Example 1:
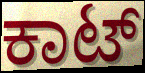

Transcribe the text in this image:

ಕಾಟ್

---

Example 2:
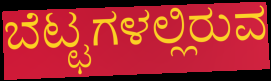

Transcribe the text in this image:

ಬೆಟ್ಟಗಳಲ್ಲಿರುವ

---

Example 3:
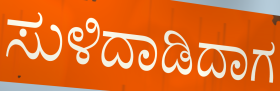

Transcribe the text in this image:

ಸುಳಿದಾಡಿದಾಗ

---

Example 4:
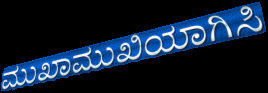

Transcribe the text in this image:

ಮುಖಾಮುಖಿಯಾಗಿಸಿ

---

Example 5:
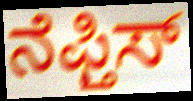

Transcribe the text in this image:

ನೆಫ್ತಿಸ್